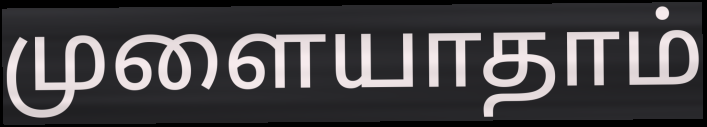
முளையாதாம்